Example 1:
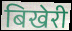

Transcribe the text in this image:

बिखेरी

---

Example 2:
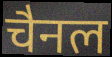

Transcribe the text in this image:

चैनल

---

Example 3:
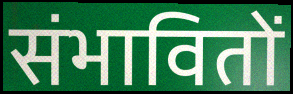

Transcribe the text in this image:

संभावितों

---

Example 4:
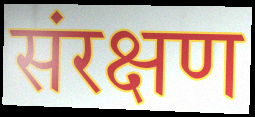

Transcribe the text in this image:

संरक्षण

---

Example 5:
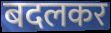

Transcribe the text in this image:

बदलकर